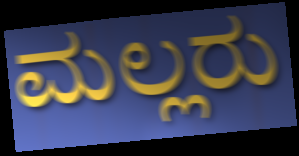
ಮಲ್ಲರು